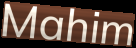
Mahim